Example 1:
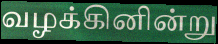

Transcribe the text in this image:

வழக்கினின்று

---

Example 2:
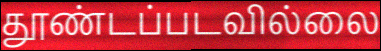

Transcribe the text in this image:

தூண்டப்படவில்லை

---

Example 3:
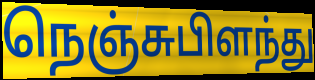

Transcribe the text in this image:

நெஞ்சுபிளந்து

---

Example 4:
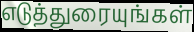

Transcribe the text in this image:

எடுத்துரையுங்கள்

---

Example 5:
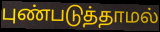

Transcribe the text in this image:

புண்படுத்தாமல்